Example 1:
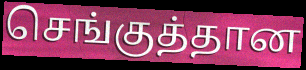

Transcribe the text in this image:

செங்குத்தான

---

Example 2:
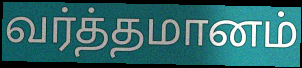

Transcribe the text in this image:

வர்த்தமானம்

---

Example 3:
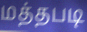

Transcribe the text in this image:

மத்தபடி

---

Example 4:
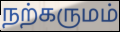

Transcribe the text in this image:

நற்கருமம்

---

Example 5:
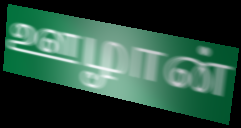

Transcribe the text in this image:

ஊழான்